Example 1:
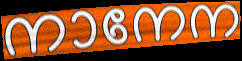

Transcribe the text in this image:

നാനേന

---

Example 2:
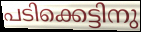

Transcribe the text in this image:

പടിക്കെട്ടിനു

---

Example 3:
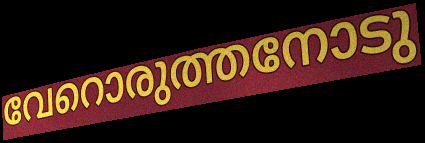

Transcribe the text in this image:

വേറൊരുത്തനോടു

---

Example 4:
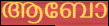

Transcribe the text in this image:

ആബോ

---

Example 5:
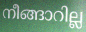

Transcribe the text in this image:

നീങ്ങാറില്ല